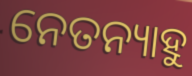
ନେତନ୍ୟାହୁ